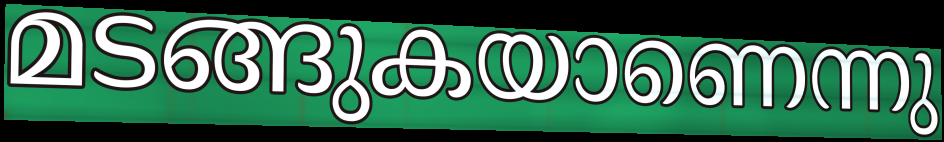
മടങ്ങുകയാണെന്നു